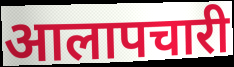
आलापचारी